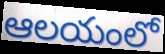
ఆలయంలో